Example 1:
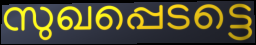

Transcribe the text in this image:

സുഖപ്പെടട്ടെ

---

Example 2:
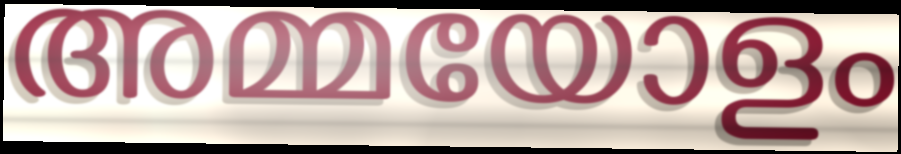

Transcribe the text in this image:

അമ്മയോളം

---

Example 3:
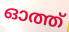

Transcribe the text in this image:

ഓത്ത്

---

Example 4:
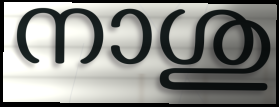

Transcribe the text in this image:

നാശു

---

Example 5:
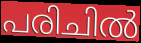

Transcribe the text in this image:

പരിചിൽ